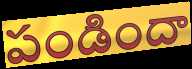
పండిందా